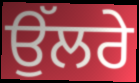
ਉੱਲਰੇ